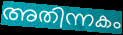
അതിന്നകം